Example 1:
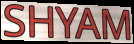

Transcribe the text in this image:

SHYAM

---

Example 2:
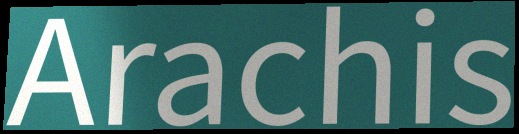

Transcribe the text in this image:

Arachis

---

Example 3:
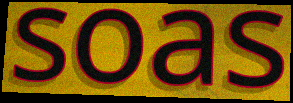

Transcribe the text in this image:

soas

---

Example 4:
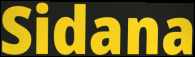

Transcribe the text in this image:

Sidana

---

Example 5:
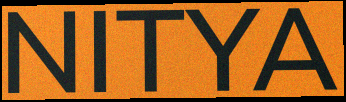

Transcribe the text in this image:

NITYA